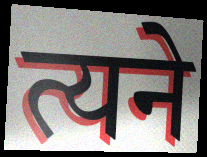
त्यने